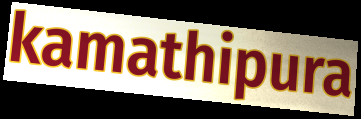
kamathipura